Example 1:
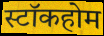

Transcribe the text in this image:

स्टॉकहोम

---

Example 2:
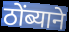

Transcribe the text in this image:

ठोंब्याने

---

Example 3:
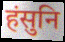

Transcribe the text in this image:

हंसुनि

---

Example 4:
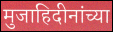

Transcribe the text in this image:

मुजाहिदीनांच्या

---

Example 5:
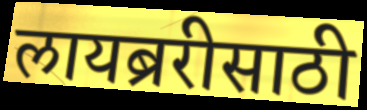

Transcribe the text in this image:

लायब्ररीसाठी